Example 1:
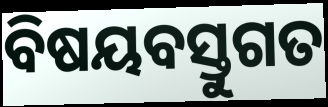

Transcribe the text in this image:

ବିଷୟବସ୍ତୁଗତ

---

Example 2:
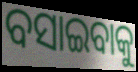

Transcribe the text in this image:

ବସାଇବାକୁ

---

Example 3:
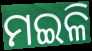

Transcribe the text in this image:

ମଇଳି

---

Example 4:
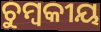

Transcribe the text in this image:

ଚୁମ୍ବକୀୟ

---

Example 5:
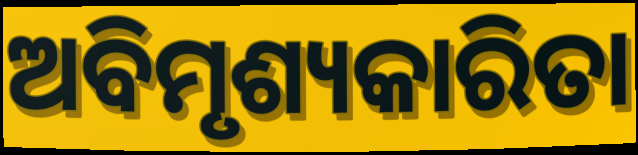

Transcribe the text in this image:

ଅବିମୃଶ୍ୟକାରିତା